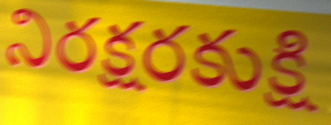
నిరక్షరకుక్షి